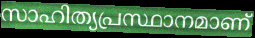
സാഹിത്യപ്രസ്ഥാനമാണ്